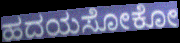
ಹದಯಸೋಕೋ